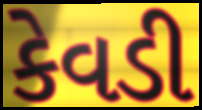
કેવડી